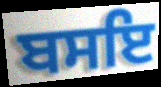
ਬਸਇ